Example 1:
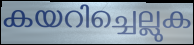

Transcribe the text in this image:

കയറിച്ചെല്ലുക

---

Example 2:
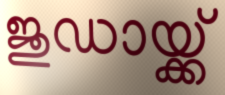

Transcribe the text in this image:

ജുഡായ്ക്ക്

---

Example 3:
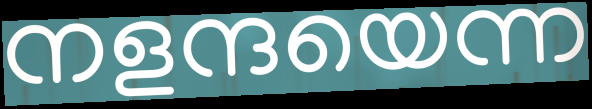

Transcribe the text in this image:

നളന്ദയെന്ന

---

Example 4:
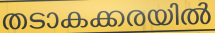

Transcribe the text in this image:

തടാകക്കരയിൽ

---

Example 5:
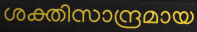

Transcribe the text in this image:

ശക്തിസാന്ദ്രമായ